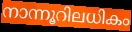
നാന്നൂറിലധികം